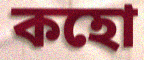
কহো